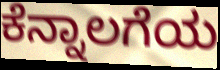
ಕೆನ್ನಾಲಗೆಯ